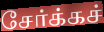
சேர்க்கச்